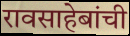
रावसाहेबांची